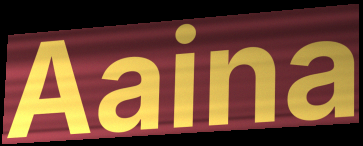
Aaina